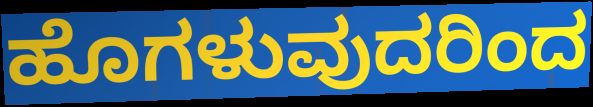
ಹೊಗಳುವುದರಿಂದ